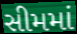
સીમમાં